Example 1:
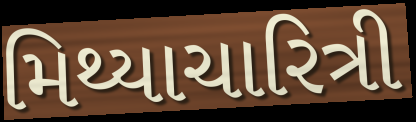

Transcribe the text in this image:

મિથ્યાચારિત્રી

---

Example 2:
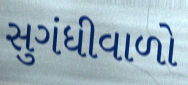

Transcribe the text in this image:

સુગંધીવાળો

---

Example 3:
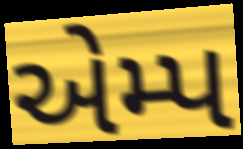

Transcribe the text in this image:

એમ્પ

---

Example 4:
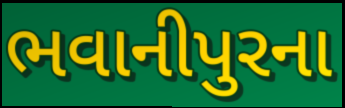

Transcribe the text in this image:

ભવાનીપુરના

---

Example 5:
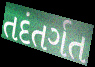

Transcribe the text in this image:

તદંતર્ગત